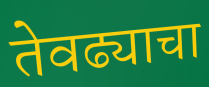
तेवढ्याचा